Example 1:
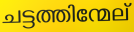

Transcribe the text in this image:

ചട്ടത്തിന്മേല്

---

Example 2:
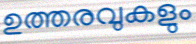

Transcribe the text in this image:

ഉത്തരവുകളും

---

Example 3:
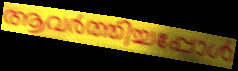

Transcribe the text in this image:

ആവർത്തിച്ചപ്പോൾ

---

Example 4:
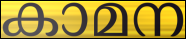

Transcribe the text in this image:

കാമന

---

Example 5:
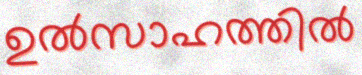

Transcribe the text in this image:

ഉൽസാഹത്തിൽ